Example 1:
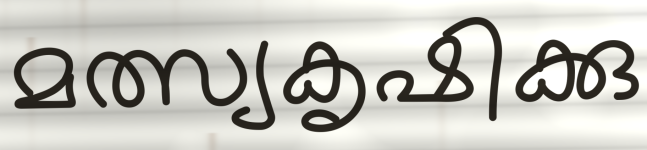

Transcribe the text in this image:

മത്സ്യകൃഷിക്കു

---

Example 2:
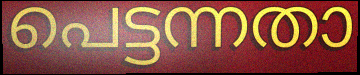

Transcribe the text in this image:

പെട്ടന്നതാ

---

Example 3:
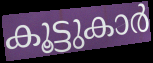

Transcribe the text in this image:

കൂട്ടുകാർ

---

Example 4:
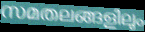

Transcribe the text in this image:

സമതലങ്ങളിലും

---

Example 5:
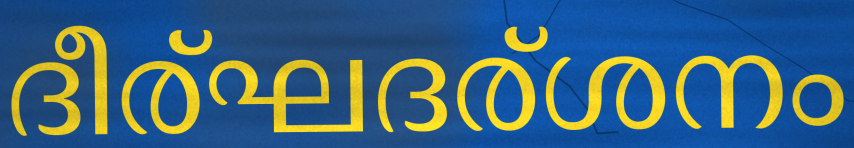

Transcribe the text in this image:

ദീര്ഘദര്ശനം